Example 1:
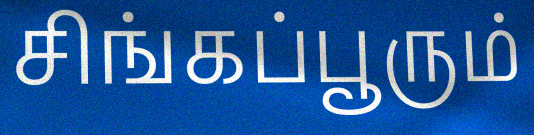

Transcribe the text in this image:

சிங்கப்பூரும்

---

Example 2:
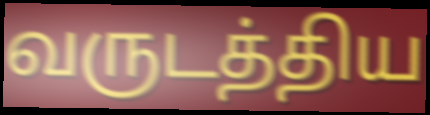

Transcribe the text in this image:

வருடத்திய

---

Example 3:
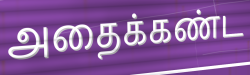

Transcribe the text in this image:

அதைக்கண்ட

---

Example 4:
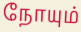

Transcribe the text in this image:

நோயும்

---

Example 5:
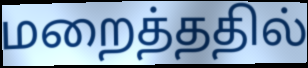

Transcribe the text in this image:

மறைத்ததில்